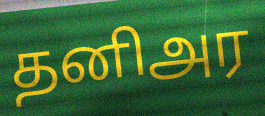
தனிஅர